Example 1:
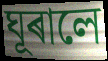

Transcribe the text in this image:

ঘূৰালে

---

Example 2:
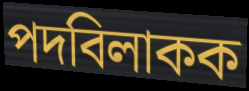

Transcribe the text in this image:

পদবিলাকক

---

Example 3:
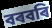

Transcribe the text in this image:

বৰবৰি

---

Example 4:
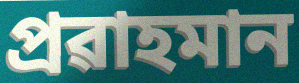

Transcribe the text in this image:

প্ৰৱাহমান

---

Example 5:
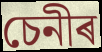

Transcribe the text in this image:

চেনীৰ